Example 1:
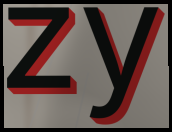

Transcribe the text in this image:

zy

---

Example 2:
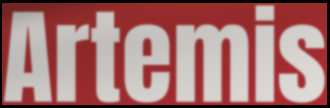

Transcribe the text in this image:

Artemis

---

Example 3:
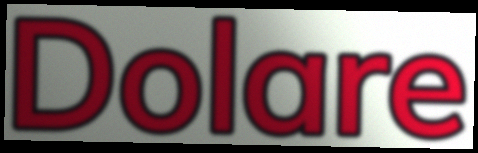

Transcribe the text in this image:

Dolare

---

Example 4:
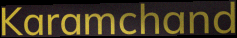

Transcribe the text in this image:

Karamchand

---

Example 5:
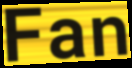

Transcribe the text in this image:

Fan